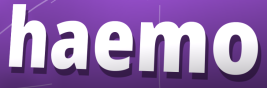
haemo